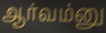
ஆர்வம்னு